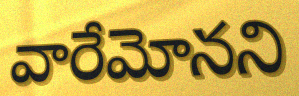
వారేమోనని